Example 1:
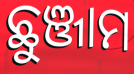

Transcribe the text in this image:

ଛୁଞ୍ଜାମ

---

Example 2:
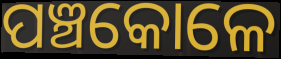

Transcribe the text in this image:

ପଞ୍ଚକୋଳେ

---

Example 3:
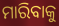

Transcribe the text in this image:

ମାରିବାକୁ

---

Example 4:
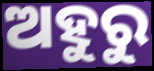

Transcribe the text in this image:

ଅହୁରୁ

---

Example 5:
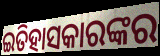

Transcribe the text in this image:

ଇତିହାସକାରଙ୍କର